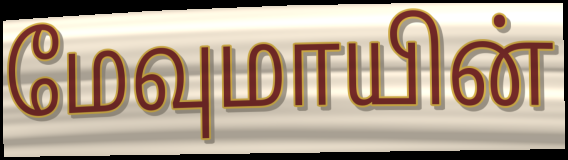
மேவுமாயின்